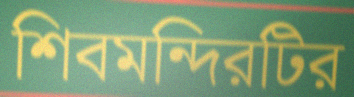
শিবমন্দিরটির